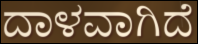
ದಾಳವಾಗಿದೆ